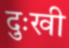
दुःखी